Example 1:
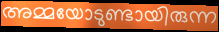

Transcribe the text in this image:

അമ്മയോടുണ്ടായിരുന്ന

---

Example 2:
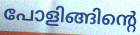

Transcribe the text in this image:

പോളിങ്ങിന്റെ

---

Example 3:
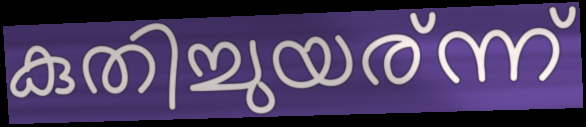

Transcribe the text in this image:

കുതിച്ചുയര്ന്ന്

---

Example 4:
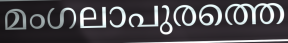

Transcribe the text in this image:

മംഗലാപുരത്തെ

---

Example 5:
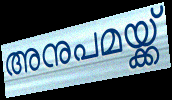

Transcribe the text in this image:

അനുപമയ്ക്ക്